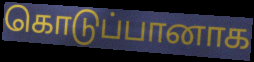
கொடுப்பானாக